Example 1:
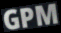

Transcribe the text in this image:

GPM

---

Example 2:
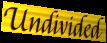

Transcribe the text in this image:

Undivided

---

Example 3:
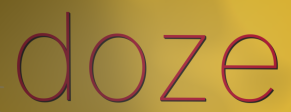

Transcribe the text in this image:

doze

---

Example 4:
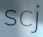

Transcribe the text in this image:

scj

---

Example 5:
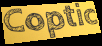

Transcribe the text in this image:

Coptic